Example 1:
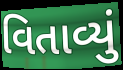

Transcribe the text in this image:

વિતાવ્યું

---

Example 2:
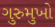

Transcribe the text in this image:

ગુરુમુખો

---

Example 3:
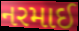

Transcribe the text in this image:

નરમાઈ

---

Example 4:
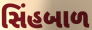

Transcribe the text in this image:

સિંહબાળ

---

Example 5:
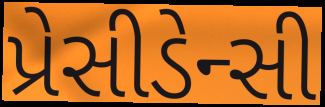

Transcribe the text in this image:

પ્રેસીડેન્સી